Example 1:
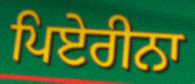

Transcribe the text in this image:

ਪਿਏਰੀਨਾ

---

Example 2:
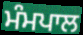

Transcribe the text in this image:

ਮੰਮਪਾਲ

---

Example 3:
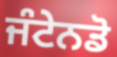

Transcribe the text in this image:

ਜੰਟੇਨਡੋ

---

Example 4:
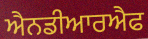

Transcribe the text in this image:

ਐਨਡੀਆਰਐਫ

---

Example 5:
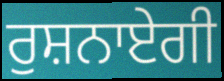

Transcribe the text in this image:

ਰੁਸ਼ਨਾਏਗੀ